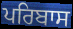
ਪਰਿਬਾਸ